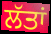
ਲੱਤਾਂ